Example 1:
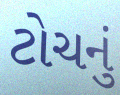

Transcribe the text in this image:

ટોચનું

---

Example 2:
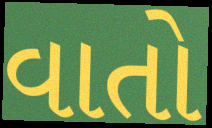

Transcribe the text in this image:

વાતો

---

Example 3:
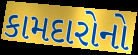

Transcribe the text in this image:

કામદારોનો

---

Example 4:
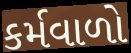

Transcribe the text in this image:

કર્મવાળો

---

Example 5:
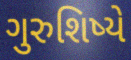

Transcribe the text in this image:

ગુરુશિષ્યે